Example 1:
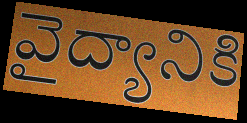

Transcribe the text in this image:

వైద్యానికి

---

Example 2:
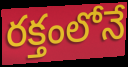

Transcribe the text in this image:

రక్తంలోనే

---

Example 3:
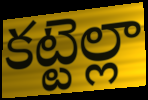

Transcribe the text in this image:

కట్టెల్లా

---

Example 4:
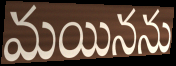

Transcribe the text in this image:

మయినను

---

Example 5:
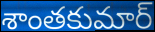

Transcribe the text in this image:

శాంతకుమార్